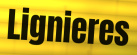
Lignieres